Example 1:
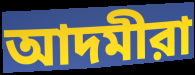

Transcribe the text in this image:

আদমীরা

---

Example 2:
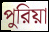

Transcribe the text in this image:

পুরিয়া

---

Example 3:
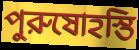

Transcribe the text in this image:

পুরুষোহস্তি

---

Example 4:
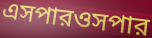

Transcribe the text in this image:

এসপারওসপার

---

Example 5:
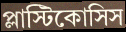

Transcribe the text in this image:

প্লাস্টিকোসিস